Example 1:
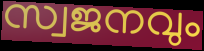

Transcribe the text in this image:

സ്വജനവും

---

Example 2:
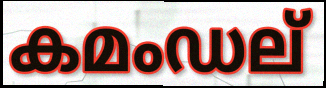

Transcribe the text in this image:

കമംഡല്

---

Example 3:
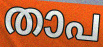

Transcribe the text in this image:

താപ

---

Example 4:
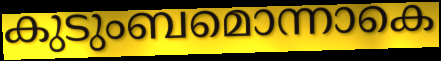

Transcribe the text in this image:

കുടുംബമൊന്നാകെ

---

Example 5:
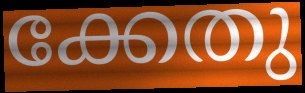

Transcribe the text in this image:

ക്കേതു